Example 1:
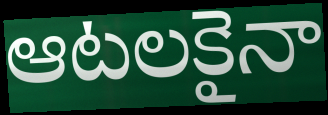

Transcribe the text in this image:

ఆటలకైనా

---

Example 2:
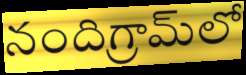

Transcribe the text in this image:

నందిగ్రామ్‌లో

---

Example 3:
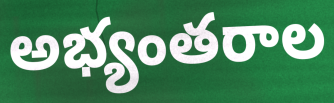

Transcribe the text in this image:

అభ్యంతరాల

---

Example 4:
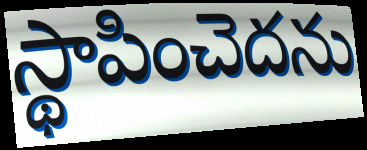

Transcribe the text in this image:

స్థాపించెదను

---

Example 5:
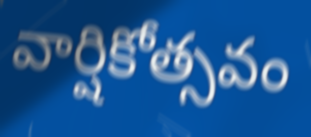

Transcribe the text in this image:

వార్షికోత్సవం